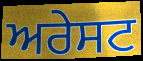
ਅਰੇਸਟ